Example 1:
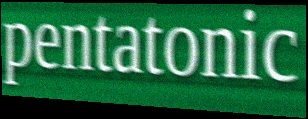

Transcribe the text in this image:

pentatonic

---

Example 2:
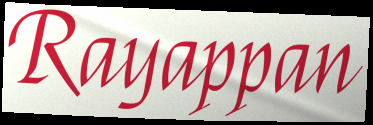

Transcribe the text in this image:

Rayappan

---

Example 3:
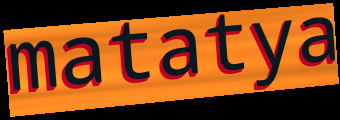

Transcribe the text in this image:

matatya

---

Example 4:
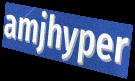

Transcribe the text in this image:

amjhyper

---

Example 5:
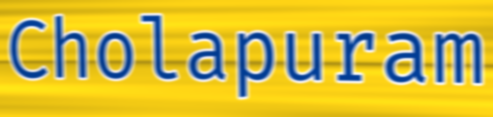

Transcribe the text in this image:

Cholapuram